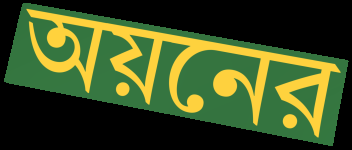
অয়নের